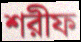
শরীফ